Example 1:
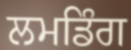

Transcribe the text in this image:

ਲਮਡਿੰਗ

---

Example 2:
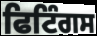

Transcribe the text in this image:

ਫਿਟਿੰਗਸ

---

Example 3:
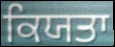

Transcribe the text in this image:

ਕਿਯਤਾ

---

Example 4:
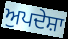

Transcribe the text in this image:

ਅੁਪਦੇਸ਼ਾ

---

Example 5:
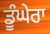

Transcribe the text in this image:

ਡੂੰਘੇਰਾ